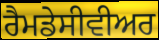
ਰੈਮਡੇਸੀਵੀਅਰ